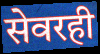
सेवरही